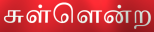
சுள்ளென்ற